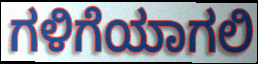
ಗಳಿಗೆಯಾಗಲಿ